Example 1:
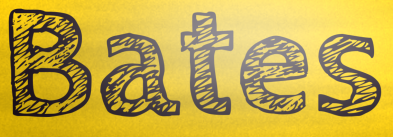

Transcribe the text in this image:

Bates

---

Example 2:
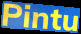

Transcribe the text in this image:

Pintu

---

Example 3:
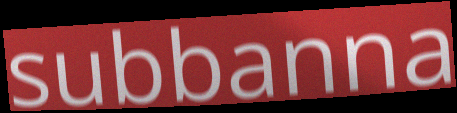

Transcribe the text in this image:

subbanna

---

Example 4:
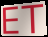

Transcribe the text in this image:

ET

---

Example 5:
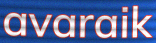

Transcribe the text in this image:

avaraik